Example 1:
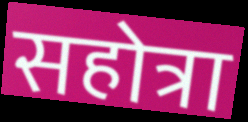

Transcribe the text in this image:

सहोत्रा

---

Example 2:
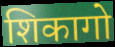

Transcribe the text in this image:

शिकागो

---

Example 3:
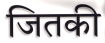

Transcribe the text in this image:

जितकी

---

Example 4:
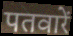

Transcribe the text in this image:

पतवारें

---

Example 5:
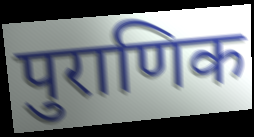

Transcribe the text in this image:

पुराणिक